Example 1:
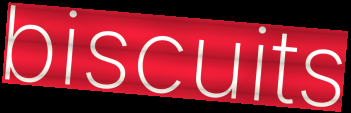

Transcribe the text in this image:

biscuits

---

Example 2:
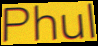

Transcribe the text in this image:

Phul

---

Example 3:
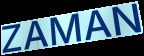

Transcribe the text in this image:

ZAMAN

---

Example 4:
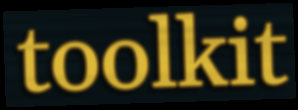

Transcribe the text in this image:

toolkit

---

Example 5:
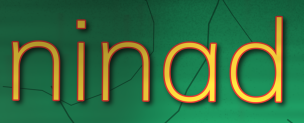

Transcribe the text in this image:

ninad